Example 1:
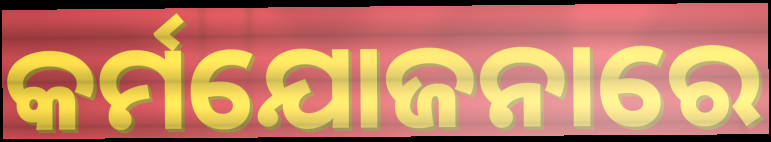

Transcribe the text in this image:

କର୍ମଯୋଜନାରେ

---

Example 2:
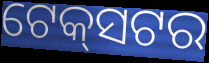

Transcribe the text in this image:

ଟେକ୍‌ସଟର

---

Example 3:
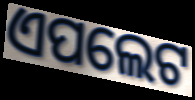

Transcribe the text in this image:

ଏପଲେଟ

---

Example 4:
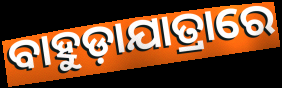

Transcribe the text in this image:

ବାହୁଡ଼ାଯାତ୍ରାରେ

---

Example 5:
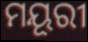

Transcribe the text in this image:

ମୟୂରୀ